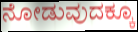
ನೋಡುವುದಕ್ಕೂ